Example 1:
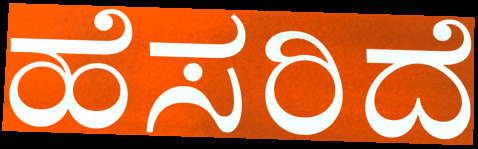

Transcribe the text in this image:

ಹೆಸರಿದೆ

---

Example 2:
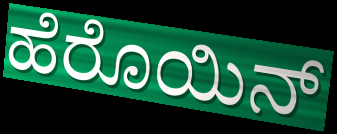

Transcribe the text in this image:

ಹೆರೊಯಿನ್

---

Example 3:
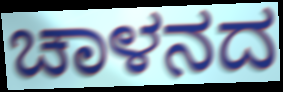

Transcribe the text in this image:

ಚಾಳನದ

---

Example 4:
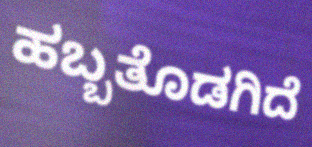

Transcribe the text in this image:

ಹಬ್ಬತೊಡಗಿದೆ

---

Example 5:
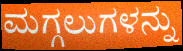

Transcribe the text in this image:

ಮಗ್ಗಲುಗಳನ್ನು